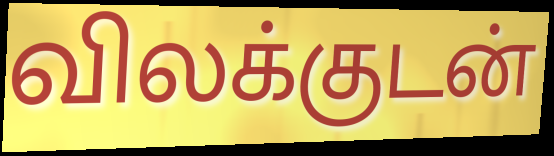
விலக்குடன்